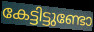
കേട്ടിട്ടുണ്ടോ